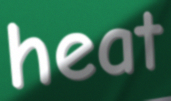
heat